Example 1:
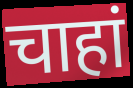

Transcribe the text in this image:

चाहां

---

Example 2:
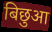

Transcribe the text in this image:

बिछुआ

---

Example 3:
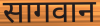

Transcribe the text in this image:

सागवान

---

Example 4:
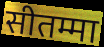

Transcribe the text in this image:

सीतम्मा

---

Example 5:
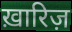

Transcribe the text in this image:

ख़ारिज़